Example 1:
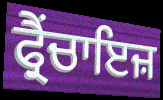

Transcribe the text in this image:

ਫ੍ਰੈਂਚਾਇਜ਼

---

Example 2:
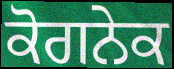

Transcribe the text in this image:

ਕੋਗਨੇਕ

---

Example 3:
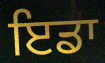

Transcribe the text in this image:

ਇਡਾ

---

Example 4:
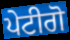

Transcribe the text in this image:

ਪੇਟੀਗੋ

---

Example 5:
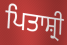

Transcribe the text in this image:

ਪਿਤਾਸ਼੍ਰੀ